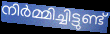
നിർമ്മിച്ചിട്ടുണ്ട്